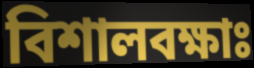
বিশালবক্ষাঃ